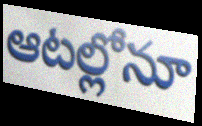
ఆటల్లోనూ